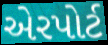
એરપોર્ટ